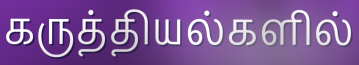
கருத்தியல்களில்